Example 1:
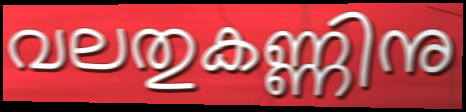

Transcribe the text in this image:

വലതുകണ്ണിനു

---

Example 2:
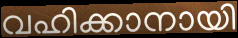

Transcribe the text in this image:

വഹിക്കാനായി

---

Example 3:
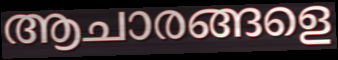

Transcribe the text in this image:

ആചാരങ്ങളെ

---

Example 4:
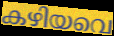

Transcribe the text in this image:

കഴിയവെ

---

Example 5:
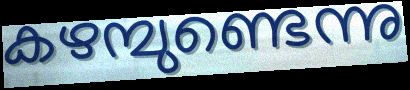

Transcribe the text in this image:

കഴമ്പുണ്ടെന്നു